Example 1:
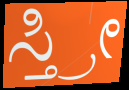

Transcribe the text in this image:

ಸ್ತ್ರೀ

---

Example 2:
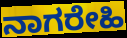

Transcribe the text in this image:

ನಾಗರೇಹಿ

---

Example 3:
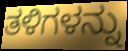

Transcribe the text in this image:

ತಳಿಗಳನ್ನು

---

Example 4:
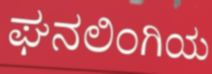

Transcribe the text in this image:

ಘನಲಿಂಗಿಯ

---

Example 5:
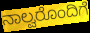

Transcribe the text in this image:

ನಾಲ್ವರೊಂದಿಗೆ